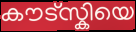
കൗട്സ്കിയെ